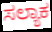
ಸಲ್ಯಾಕ